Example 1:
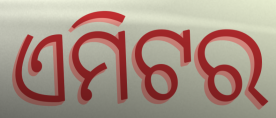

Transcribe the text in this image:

ଏମିଟର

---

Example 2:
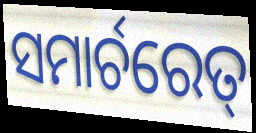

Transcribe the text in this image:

ସମାର୍ଚରେତ୍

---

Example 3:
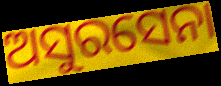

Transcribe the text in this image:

ଅସୁରସେନା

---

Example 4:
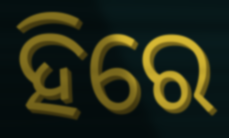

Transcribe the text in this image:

ହିରେ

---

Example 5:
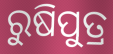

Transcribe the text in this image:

ରୁଷିପୁତ୍ର